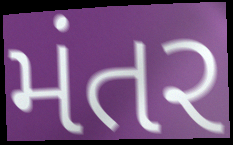
મંતર